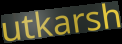
utkarsh